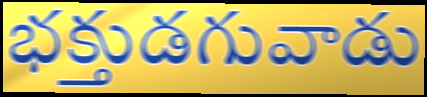
భక్తుడగువాడు